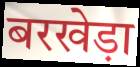
बरखेड़ा